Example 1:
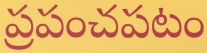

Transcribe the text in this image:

ప్రపంచపటం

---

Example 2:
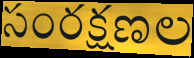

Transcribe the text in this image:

సంరక్షణల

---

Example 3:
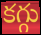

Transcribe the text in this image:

కగ్గు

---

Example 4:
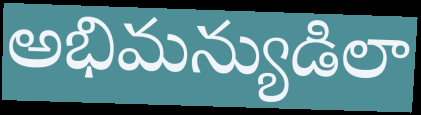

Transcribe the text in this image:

అభిమన్యుడిలా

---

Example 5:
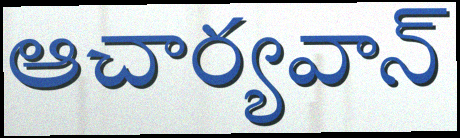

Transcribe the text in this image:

ఆచార్యవాన్